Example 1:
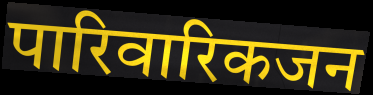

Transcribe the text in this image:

पारिवारिकजन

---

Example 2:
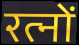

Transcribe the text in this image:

रत्‍नों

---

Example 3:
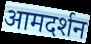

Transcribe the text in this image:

आमदर्शन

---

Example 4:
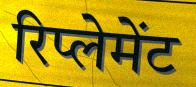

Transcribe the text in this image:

रिप्लेमेंट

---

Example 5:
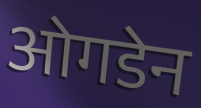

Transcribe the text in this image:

ओगडेन